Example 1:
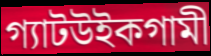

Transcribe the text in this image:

গ্যাটউইকগামী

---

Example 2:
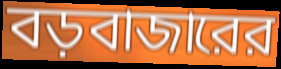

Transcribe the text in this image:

বড়বাজারের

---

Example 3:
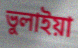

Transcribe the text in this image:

ভুলাইয়া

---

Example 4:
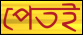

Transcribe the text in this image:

পেতই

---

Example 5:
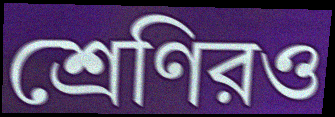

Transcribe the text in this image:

শ্রেণিরও